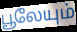
பூலேயும்